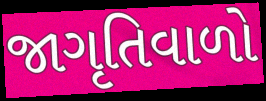
જાગૃતિવાળો